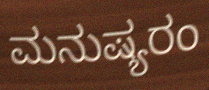
ಮನುಷ್ಯರಂ